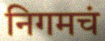
निगमचं